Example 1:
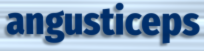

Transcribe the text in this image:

angusticeps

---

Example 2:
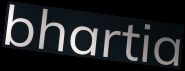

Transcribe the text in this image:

bhartia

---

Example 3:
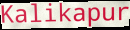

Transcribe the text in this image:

Kalikapur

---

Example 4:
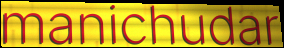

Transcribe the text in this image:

manichudar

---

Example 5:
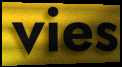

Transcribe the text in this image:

vies